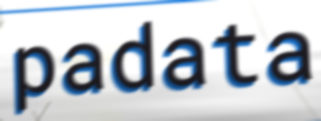
padata